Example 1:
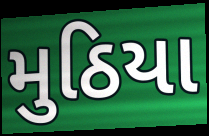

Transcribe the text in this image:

મુઠિયા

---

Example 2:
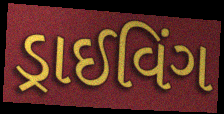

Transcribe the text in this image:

ડ્રાઈવિંગ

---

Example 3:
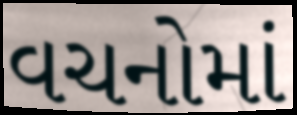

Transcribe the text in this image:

વચનોમાં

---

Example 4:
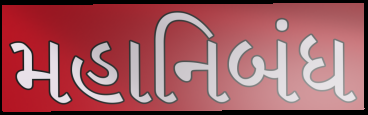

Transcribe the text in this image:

મહાનિબંધ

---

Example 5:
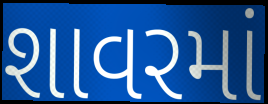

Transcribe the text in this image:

શાવરમાં